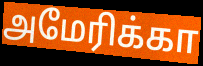
அமேரிக்கா